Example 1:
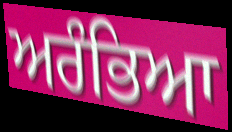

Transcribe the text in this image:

ਅਰੰਭਿਆ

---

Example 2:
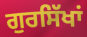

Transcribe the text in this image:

ਗੁਰਸਿੱਖਾਂ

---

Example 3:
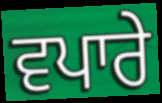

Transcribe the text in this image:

ਵਪਾਰੇ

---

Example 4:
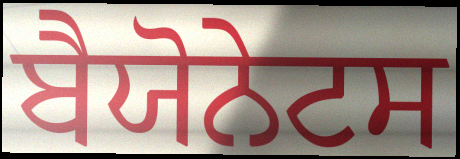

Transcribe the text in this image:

ਬੈਯੋਨੇਟਸ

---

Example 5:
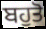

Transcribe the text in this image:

ਬਹੁਤੋ